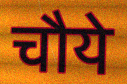
चौये